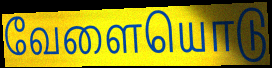
வேளையொடு